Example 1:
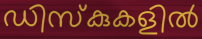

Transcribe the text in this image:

ഡിസ്കുകളിൽ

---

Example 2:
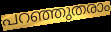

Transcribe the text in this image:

പറഞ്ഞുതരാം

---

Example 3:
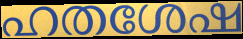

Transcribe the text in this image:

ഹതശേഷ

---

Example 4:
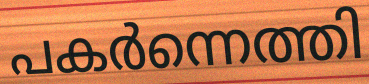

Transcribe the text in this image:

പകർന്നെത്തി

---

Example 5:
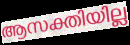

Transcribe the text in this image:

ആസക്തിയില്ല